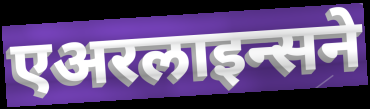
एअरलाइन्सने